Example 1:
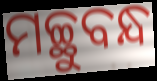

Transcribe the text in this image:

ମଚ୍ଛୁବନ୍ଧ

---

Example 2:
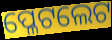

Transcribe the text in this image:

ପ୍ଳେଟଲେଟ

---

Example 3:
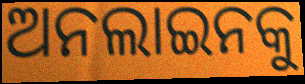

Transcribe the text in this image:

ଅନଲାଇନକୁ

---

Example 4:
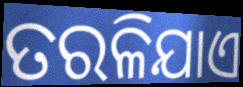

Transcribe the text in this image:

ତରଳିଯାଏ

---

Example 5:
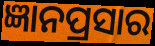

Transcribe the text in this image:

ଜ୍ଞାନପ୍ରସାର